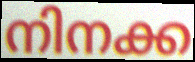
നിനക്ക